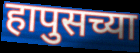
हापुसच्या